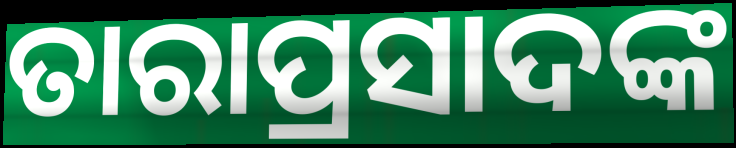
ତାରାପ୍ରସାଦଙ୍କ